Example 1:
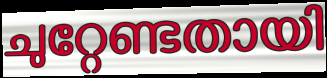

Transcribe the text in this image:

ചുറ്റേണ്ടതായി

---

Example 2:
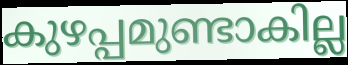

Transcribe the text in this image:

കുഴപ്പമുണ്ടാകില്ല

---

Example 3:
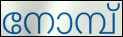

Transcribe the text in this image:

നോമ്പ്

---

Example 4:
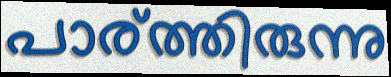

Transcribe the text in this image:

പാര്ത്തിരുന്നു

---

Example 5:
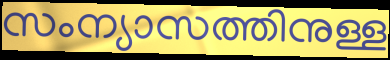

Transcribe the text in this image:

സംന്യാസത്തിനുള്ള